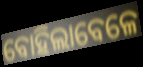
ବୋହିଲାବେଳେ